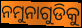
ନମୁନାଗୁଡିକୁ